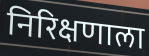
निरिक्षणाला